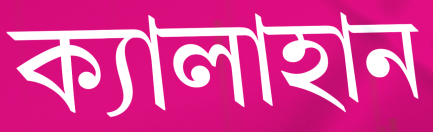
ক্যালাহান